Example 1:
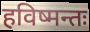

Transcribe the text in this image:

हविष्मन्तः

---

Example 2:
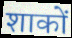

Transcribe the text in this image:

शाकों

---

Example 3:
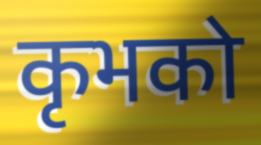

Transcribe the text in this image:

कृभको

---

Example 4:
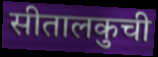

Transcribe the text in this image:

सीतालकुची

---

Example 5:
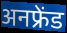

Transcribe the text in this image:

अनफ्रेंड